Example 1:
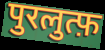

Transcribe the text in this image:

पुरलुत्फ़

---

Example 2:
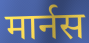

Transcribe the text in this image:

मार्नस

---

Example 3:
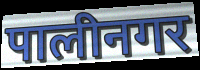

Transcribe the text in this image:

पालीनगर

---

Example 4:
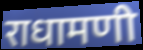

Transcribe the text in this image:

राधामणी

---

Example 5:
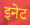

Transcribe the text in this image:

इनेट